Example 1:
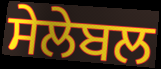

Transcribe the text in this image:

ਸੇਲੇਬਲ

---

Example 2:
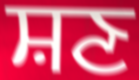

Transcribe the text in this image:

ਸ਼ਣ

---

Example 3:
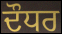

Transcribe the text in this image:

ਦੌਧਰ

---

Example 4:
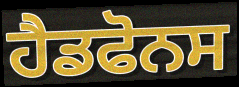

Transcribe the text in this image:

ਹੈਡਫੋਨਸ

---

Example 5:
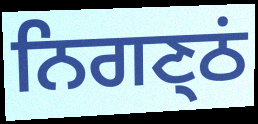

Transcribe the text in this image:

ਨਿਗਣ੍ਠਂ